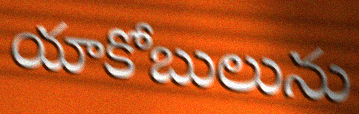
యాకోబులును